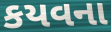
કયવના